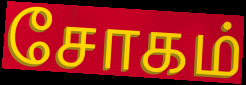
சோகம்